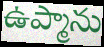
ఉప్మాను